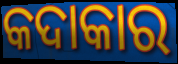
କଦାକାର